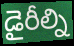
డైరీల్ని